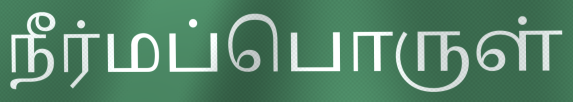
நீர்மப்பொருள்